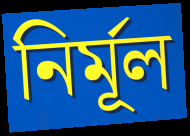
নির্মূল